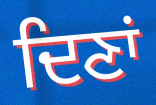
ਦਿਣਾਂ